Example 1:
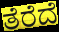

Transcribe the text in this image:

ತೆರೆದೆ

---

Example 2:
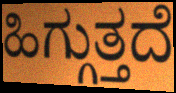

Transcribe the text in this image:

ಹಿಗ್ಗುತ್ತದೆ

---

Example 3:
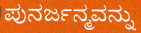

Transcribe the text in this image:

ಪುನರ್ಜನ್ಮವನ್ನು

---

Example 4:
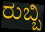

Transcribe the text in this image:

ರುಬ್ಬಿ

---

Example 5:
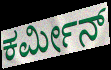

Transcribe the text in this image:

ಕರ್ಮೀನ್